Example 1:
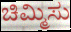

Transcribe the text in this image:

ಚಿಮ್ಮಿಸು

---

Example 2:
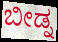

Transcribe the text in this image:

ಬೀಡ್ನ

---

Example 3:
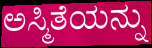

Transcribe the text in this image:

ಅಸ್ಮಿತೆಯನ್ನು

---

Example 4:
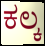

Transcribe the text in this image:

ಕಲ್ಕ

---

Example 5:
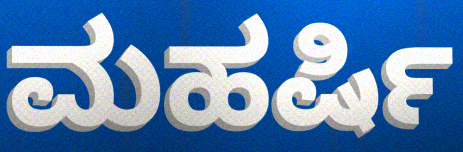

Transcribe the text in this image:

ಮಹರ್ಷಿ